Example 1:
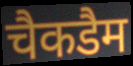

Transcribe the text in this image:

चैकडैम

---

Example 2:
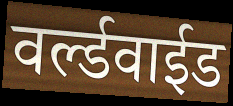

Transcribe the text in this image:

वर्ल्डवाईड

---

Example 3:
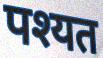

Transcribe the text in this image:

पश्यत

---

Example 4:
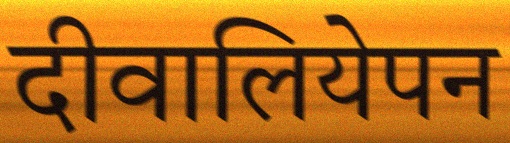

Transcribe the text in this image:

दीवालियेपन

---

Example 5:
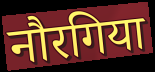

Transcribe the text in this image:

नौरगिया